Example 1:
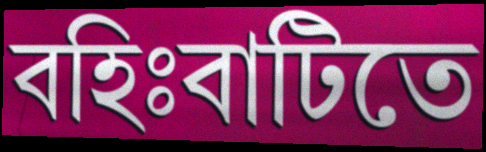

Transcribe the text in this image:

বহিঃবাটিতে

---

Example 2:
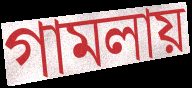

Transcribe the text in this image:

গামলায়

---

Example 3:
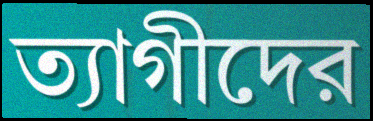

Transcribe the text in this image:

ত্যাগীদের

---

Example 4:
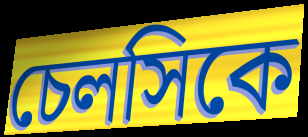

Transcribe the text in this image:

চেলসিকে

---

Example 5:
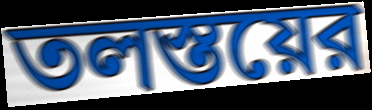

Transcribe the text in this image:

তলস্তয়ের